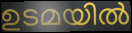
ഉടമയിൽ